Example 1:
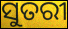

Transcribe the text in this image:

ସୁତରୀ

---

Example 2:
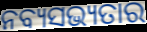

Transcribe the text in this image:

ନବ୍ୟସଭ୍ୟତାର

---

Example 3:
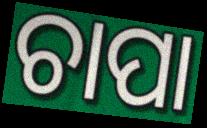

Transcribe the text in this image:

ଚାପା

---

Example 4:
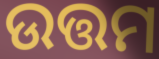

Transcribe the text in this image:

ଉତ୍ତମ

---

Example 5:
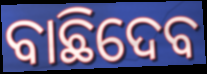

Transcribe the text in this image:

ବାଛିଦେବ